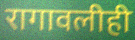
रागावलीही